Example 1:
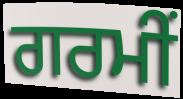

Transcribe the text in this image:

ਗਰਮੀਂ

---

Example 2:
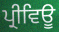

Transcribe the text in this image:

ਪ੍ਰੀਵਿਊ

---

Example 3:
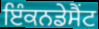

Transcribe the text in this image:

ਇੰਕਨਡੇਸੈਂਟ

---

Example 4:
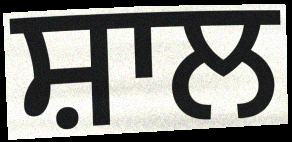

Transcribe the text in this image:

ਸ਼ਾਲ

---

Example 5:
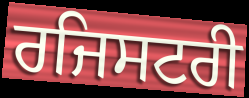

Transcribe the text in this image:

ਰਜਿਸਟਰੀ